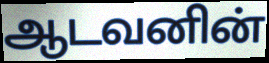
ஆடவனின்